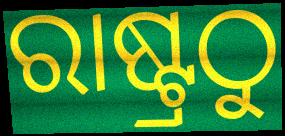
ରାଷ୍ଟ୍ରଠୁ